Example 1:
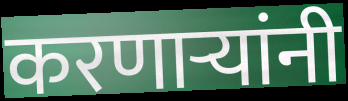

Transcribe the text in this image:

करणार्‍यांनी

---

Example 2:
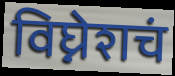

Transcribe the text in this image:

विघ्नेशचं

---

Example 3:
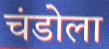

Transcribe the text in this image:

चंडोला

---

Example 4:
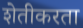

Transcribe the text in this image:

शेतीकरता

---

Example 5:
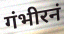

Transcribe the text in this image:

गंभीरनं